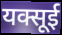
यक्सूई